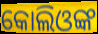
କୋଲିଓଙ୍କ